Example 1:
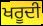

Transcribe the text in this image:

ਖਰੂਦੀ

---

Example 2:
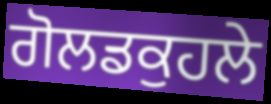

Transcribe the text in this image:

ਗੋਲਡਕੁਹਲੇ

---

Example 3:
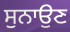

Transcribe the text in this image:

ਸੁਨਾਉਣ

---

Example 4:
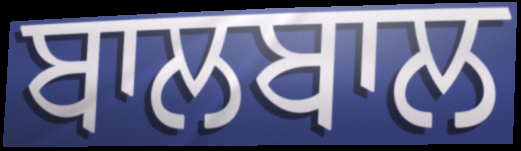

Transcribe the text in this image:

ਬਾਲਬਾਲ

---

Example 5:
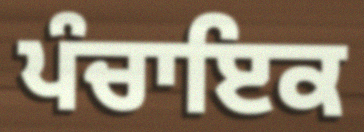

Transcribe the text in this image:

ਪੰਚਾਇਕ